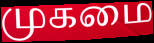
முகமை